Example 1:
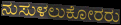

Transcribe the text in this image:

ನುಸುಳಲುಕೋರರು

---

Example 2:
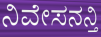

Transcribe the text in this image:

ನಿವೇಸನನ್ತಿ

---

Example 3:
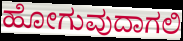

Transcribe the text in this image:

ಹೋಗುವುದಾಗಲಿ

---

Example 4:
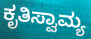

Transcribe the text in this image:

ಕೃತಿಸ್ವಾಮ್ಯ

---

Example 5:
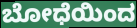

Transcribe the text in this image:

ಬೋಧೆಯಿಂದ